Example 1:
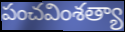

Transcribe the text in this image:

పంచవింశత్యా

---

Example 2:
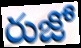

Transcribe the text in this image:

రుజో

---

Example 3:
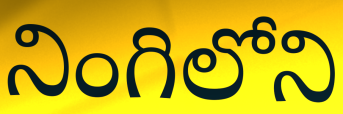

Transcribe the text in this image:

నింగిలోని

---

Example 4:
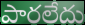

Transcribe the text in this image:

పారలేదు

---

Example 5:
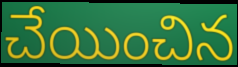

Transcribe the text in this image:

చేయించిన